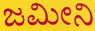
ಜಮೀನಿ